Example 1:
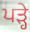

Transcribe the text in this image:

ਪੜ੍ਹੇ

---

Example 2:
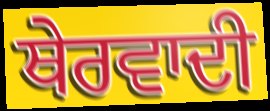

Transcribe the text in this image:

ਥੇਰਵਾਦੀ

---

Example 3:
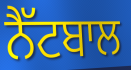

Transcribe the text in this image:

ਨੈੱਟਬਾਲ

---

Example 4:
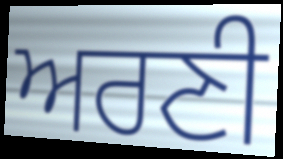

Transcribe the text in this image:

ਅਰਣੀ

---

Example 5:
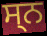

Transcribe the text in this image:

ਸ੍ਨ